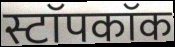
स्टॉपकॉक